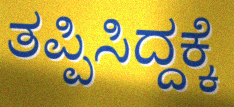
ತಪ್ಪಿಸಿದ್ದಕ್ಕೆ